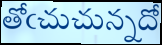
తోఁచుచున్నదో